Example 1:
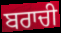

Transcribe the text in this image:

ਬਰਾਚੀ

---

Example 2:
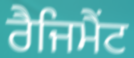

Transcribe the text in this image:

ਰੈਜਿਮੈਂਟ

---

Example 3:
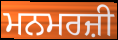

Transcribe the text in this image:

ਮਨਮਰਜ਼ੀ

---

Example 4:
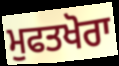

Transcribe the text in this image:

ਮੁਫਤਖੋਰਾ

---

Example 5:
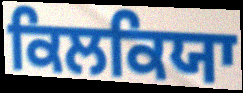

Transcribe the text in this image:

ਕਿਲਕਿਯਾ